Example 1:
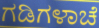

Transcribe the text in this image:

ಗಡಿಗಳಾಚೆ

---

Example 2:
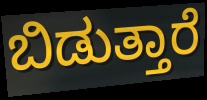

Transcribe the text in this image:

ಬಿಡುತ್ತಾರೆ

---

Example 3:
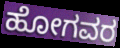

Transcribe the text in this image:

ಹೋಗವರ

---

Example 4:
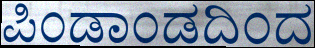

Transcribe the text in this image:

ಪಿಂಡಾಂಡದಿಂದ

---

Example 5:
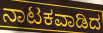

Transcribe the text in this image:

ನಾಟಕವಾಡಿದ